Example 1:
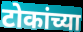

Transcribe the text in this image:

टोकांच्या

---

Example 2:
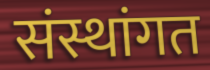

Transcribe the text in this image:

संस्थांगत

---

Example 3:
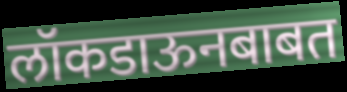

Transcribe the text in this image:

लॉकडाऊनबाबत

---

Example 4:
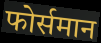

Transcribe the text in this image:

फोर्समान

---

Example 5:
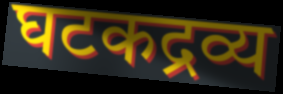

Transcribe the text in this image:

घटकद्रव्य